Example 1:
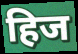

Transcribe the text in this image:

हिज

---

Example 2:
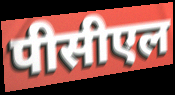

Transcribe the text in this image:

पीसीएल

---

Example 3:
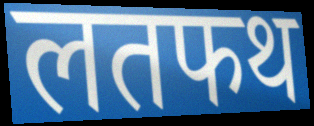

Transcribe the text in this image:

लतफथ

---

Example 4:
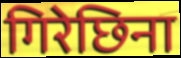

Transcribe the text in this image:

गिरेछिना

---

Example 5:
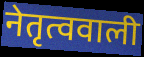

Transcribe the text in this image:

नेतृत्ववाली